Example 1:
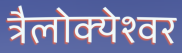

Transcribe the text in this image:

त्रैलोक्येश्वर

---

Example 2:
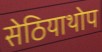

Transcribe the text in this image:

सेठियाथोप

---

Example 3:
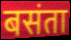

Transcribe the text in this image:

बसंता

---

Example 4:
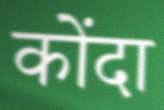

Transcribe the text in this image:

कोंदा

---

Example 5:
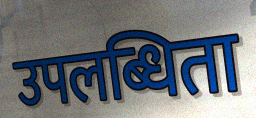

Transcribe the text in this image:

उपलब्धिता